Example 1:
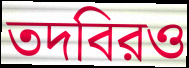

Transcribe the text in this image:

তদবিরও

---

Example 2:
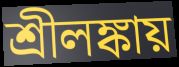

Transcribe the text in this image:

শ্রীলঙ্কায়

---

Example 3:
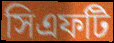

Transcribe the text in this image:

সিএফটি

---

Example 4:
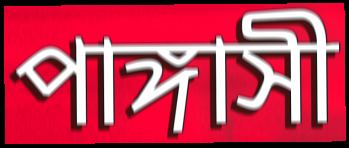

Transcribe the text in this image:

পাঙ্গাসী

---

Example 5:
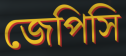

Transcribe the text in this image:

জেপিসি